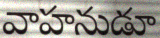
వాహనుడూ